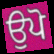
ਉਪੋ